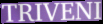
TRIVENI